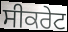
ਸੀਕਰੇਟ